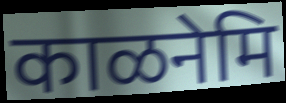
काळनेमि